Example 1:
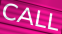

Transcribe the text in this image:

CALL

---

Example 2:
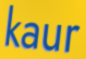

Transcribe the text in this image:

kaur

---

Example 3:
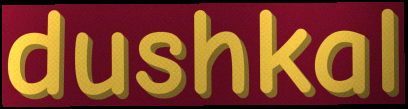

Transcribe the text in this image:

dushkal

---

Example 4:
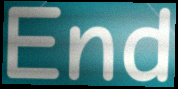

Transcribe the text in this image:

End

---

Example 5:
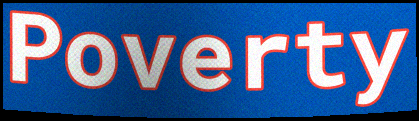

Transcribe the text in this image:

Poverty